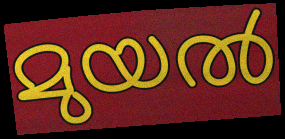
മുയൽ